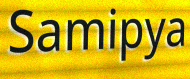
Samipya